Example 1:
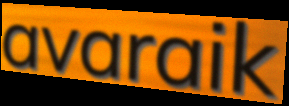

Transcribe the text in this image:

avaraik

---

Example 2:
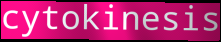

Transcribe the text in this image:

cytokinesis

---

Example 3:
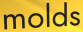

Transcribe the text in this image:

molds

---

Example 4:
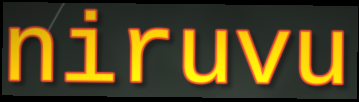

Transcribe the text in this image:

niruvu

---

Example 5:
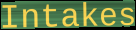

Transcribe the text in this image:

Intakes